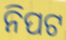
ନିପଟ